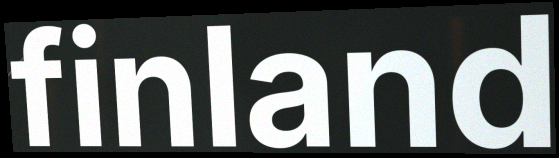
finland